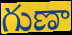
గుణా